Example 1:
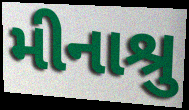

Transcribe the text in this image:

મીનાશ્રુ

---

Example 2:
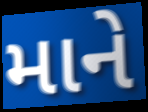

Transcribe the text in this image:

માને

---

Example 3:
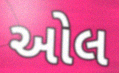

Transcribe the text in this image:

ઓલ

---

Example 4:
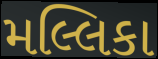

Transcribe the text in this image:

મલ્લિકા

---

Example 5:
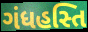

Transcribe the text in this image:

ગંધહસ્તિ